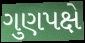
ગુણપક્ષે